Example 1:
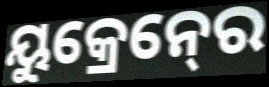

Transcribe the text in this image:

ୟୁକ୍ରେନ୍‍ରେ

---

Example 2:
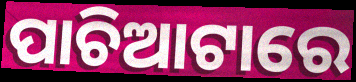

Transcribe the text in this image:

ପାଚିଆଟାରେ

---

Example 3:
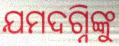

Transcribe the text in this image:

ଯମଦଗ୍ନିଙ୍କୁ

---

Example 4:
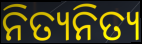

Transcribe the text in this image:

ନିତ୍ୟନିତ୍ୟ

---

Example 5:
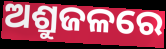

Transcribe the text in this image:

ଅଶ୍ରୁଜଳରେ